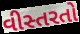
વીસ્તરતો